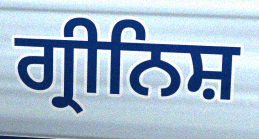
ਗ੍ਰੀਨਿਸ਼